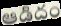
ఆడిదం